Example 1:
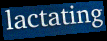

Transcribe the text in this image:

lactating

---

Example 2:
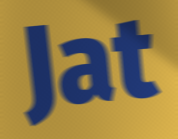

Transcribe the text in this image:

Jat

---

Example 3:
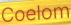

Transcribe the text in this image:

Coelom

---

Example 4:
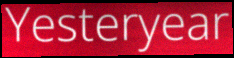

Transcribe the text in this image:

Yesteryear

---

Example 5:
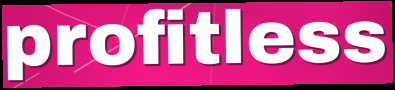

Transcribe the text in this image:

profitless